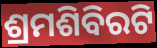
ଶ୍ରମଶିବିରଟି